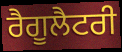
ਰੈਗੂਲੈਟਰੀ